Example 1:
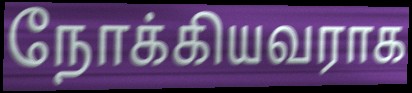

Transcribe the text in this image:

நோக்கியவராக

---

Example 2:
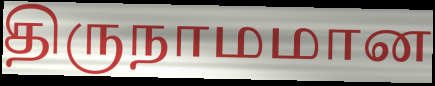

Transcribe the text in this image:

திருநாமமான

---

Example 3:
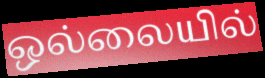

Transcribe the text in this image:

ஒல்லையில்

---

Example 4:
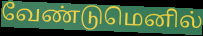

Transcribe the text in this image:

வேண்டுமெனில்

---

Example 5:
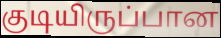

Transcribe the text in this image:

குடியிருப்பான